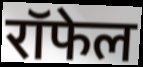
रॉफेल